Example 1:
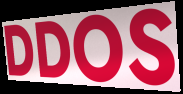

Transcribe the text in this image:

DDOS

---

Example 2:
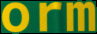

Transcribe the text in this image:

orm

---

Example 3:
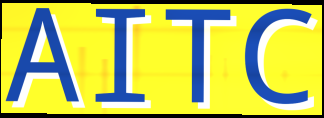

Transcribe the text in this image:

AITC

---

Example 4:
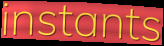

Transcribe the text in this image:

instants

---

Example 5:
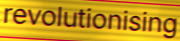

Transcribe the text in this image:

revolutionising